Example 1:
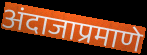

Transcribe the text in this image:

अंदाजाप्रमाणे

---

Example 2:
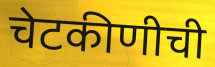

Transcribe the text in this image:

चेटकीणीची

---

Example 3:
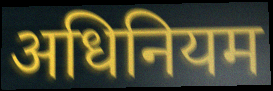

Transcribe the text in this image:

अधिनियम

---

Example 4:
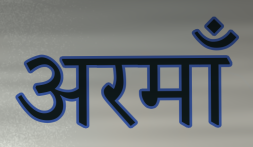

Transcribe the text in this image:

अरमाँ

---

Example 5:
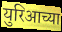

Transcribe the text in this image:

युरिआच्या